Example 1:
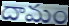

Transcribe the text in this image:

దామం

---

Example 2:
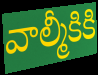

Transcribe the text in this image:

వాల్మీకికి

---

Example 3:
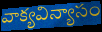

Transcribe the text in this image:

వాక్యవిన్యాసం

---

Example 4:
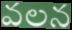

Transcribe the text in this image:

వలన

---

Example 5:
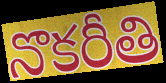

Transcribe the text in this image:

నొకరీతి